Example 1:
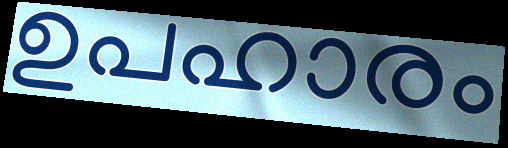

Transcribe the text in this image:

ഉപഹാരം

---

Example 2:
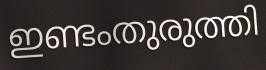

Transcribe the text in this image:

ഇണ്ടംതുരുത്തി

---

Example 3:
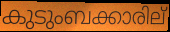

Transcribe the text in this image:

കുടുംബക്കാരില്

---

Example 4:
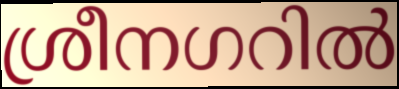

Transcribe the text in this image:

ശ്രീനഗറിൽ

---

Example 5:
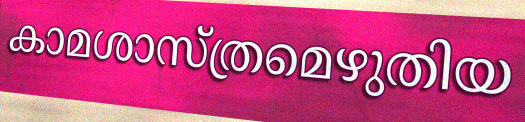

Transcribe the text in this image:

കാമശാസ്ത്രമെഴുതിയ